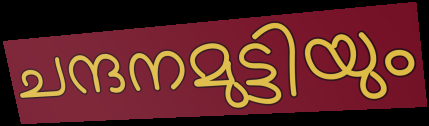
ചന്ദനമുട്ടിയും